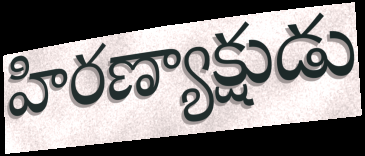
హిరణ్యాక్షుడు